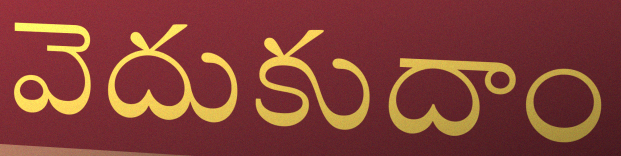
వెదుకుదాం